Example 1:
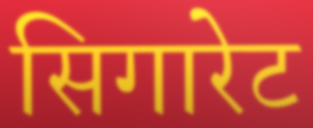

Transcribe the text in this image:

सिगारेट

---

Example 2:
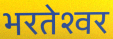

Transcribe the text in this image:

भरतेश्वर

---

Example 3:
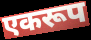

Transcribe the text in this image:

एकरूप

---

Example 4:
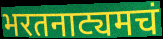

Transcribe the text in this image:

भरतनाट्यमचं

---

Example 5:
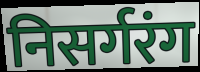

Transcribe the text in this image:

निसर्गरंग